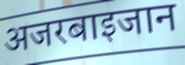
अजरबाइजान